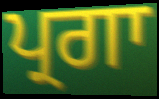
ਪ੍ਰਗਾ